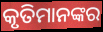
କୃତିମାନଙ୍କର